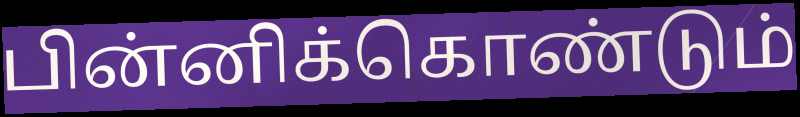
பின்னிக்கொண்டும்